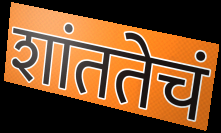
शांततेचं